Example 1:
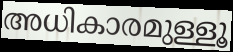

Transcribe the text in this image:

അധികാരമുള്ളൂ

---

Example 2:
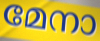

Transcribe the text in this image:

മേനാ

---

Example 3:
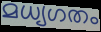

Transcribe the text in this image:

മധ്യഗതം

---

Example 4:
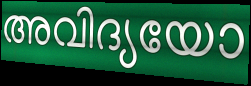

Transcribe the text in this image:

അവിദ്യയോ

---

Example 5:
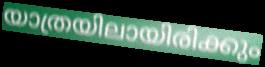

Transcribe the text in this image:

യാത്രയിലായിരിക്കും